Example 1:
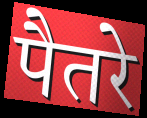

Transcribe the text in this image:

पैतरे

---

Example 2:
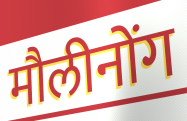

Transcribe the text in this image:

मौलीनोंग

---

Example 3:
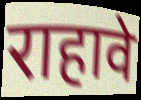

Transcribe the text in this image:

राहावे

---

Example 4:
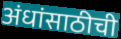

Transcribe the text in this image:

अंधांसाठीची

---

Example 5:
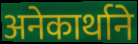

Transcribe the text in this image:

अनेकार्थाने